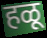
हळू